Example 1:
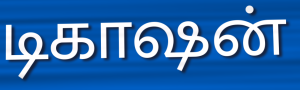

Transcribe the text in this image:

டிகாஷன்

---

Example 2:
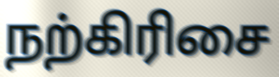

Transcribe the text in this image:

நற்கிரிசை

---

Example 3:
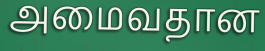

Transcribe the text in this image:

அமைவதான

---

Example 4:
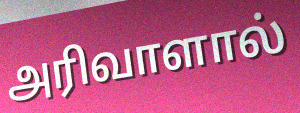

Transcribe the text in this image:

அரிவாளால்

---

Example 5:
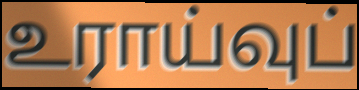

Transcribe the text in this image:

உராய்வுப்